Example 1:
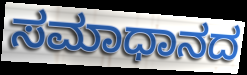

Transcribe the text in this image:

ಸಮಾಧಾನದ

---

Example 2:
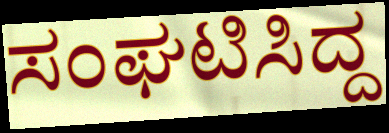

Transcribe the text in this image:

ಸಂಘಟಿಸಿದ್ದ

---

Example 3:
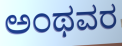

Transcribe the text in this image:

ಅಂಥವರ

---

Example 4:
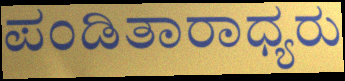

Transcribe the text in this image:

ಪಂಡಿತಾರಾಧ್ಯರು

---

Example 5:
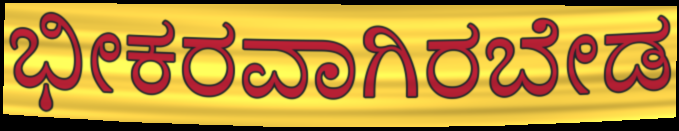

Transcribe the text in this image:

ಭೀಕರವಾಗಿರಬೇಡ